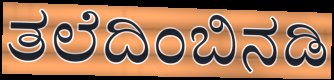
ತಲೆದಿಂಬಿನಡಿ